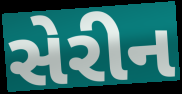
સેરીન